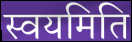
स्वयमिति